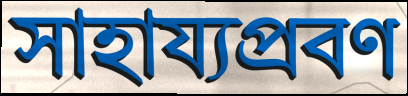
সাহায্যপ্রবণ